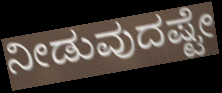
ನೀಡುವುದಷ್ಟೇ